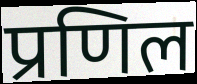
प्रणिल